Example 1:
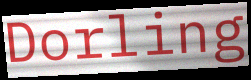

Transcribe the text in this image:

Dorling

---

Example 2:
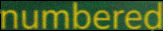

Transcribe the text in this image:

numbered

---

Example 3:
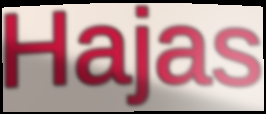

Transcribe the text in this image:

Hajas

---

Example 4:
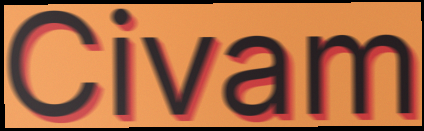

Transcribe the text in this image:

Civam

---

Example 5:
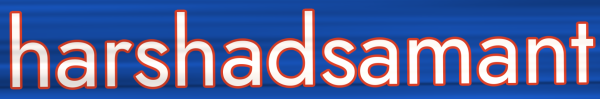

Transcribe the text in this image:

harshadsamant